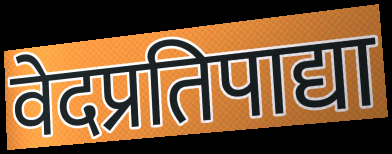
वेदप्रतिपाद्या